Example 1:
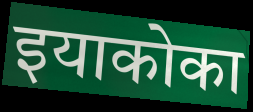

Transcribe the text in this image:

इयाकोका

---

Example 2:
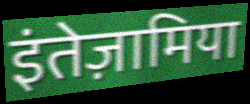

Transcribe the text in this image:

इंतेज़ामिया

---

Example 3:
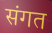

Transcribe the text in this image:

संगत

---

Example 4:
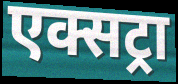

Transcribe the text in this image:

एक्सट्रा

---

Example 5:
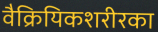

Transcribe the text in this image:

वैक्रियिकशरीरका